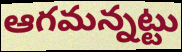
ఆగమన్నట్టు